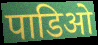
पाडिओ